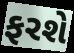
ફરશે